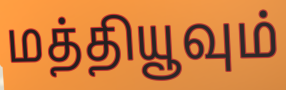
மத்தியூவும்